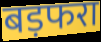
बड़फरा